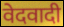
वेदवादी